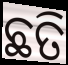
ଛତି